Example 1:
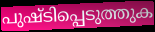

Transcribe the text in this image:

പുഷ്ടിപ്പെടുത്തുക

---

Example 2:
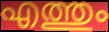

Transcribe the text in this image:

എത്തും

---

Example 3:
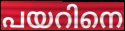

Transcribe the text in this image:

പയറിനെ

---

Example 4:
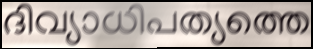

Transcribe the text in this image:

ദിവ്യാധിപത്യത്തെ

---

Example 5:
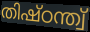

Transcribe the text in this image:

തിഷ്ഠന്ത്വ്